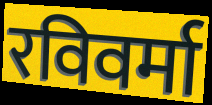
रविवर्मा